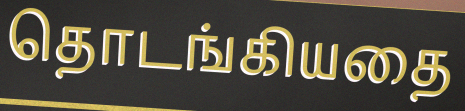
தொடங்கியதை